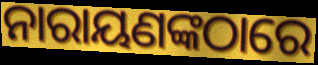
ନାରାୟଣଙ୍କଠାରେ